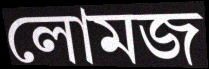
লোমজ